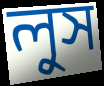
লুস